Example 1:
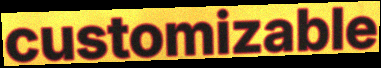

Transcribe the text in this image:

customizable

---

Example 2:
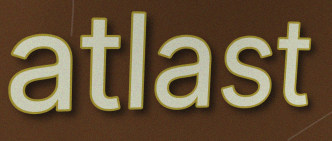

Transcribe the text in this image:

atlast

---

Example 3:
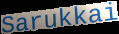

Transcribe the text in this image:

Sarukkai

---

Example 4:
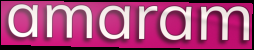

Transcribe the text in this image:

amaram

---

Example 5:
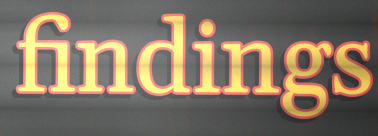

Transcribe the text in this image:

findings